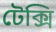
টেক্সি